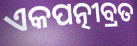
ଏକପତ୍ନୀବ୍ରତ